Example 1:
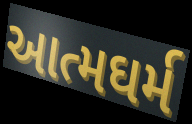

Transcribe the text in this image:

આત્મઘર્મ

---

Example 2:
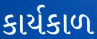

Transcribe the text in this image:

કાર્યકાળ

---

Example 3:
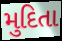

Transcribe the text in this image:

મુદિતા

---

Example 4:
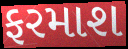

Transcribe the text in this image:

ફરમાશ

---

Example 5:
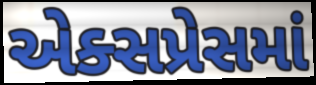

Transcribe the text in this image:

એક્સપ્રેસમાં